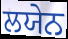
ਲਯੇਨ